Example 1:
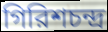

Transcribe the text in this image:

গিরিশচন্দ্র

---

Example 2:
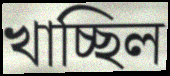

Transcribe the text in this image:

খাচ্ছিল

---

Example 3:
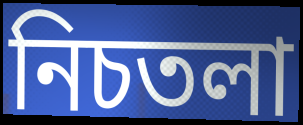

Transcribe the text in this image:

নিচতলা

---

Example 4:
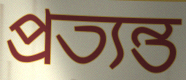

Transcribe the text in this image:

প্রত্যন্ত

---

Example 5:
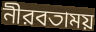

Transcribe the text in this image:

নীরবতাময়